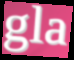
gla